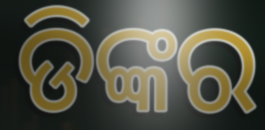
ଡିଙ୍କର